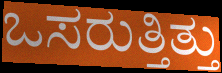
ಒಸರುತ್ತಿತ್ತು